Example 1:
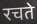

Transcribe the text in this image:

रचते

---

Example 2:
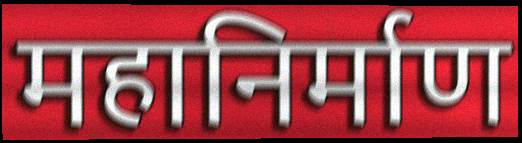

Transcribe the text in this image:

महानिर्माण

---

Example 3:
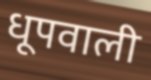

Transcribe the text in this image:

धूपवाली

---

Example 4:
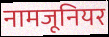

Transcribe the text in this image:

नामजूनियर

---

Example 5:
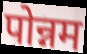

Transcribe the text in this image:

पोन्नम